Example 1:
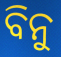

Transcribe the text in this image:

ବିନୁ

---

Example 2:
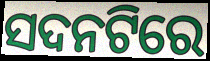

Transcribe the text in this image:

ସଦନଟିରେ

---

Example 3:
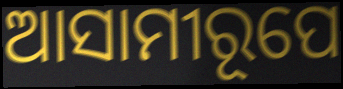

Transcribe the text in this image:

ଆସାମୀରୂପେ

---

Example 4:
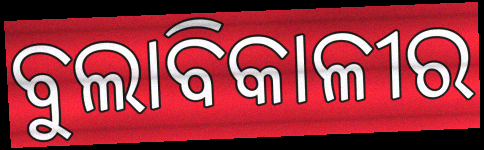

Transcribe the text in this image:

ବୁଲାବିକାଳୀର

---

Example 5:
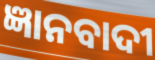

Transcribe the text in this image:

ଜ୍ଞାନବାଦୀ